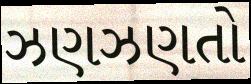
ઝણઝણતો